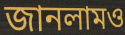
জানলামও